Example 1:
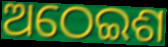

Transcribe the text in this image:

ଅଠେଇଶ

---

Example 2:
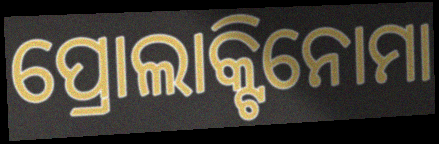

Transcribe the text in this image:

ପ୍ରୋଲାକ୍ଟିନୋମା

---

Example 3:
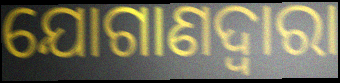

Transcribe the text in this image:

ଯୋଗାଣଦ୍ଵାରା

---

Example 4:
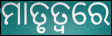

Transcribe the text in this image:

ମାତୃତ୍ୱରେ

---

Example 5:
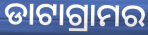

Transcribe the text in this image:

ଡାଟାଗ୍ରାମର